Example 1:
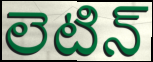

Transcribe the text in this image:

లెటిన్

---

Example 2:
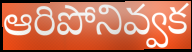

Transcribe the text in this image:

ఆరిపోనివ్వక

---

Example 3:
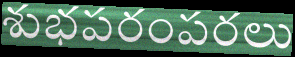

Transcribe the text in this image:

శుభపరంపరలు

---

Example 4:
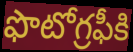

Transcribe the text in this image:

ఫొటోగ్రఫీకి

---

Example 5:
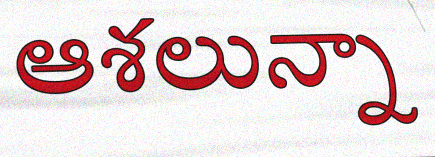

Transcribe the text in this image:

ఆశలున్నా